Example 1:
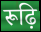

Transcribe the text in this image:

रूढ़ि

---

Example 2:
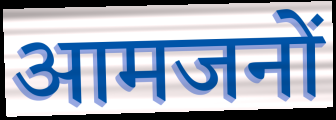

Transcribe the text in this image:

आमजनों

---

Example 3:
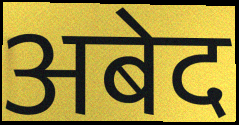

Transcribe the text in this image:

अबेद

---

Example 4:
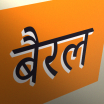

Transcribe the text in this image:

बैरल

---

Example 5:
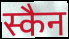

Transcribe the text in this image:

स्कैन